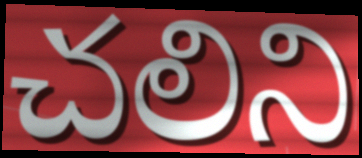
చలిని